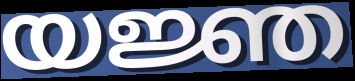
യജ്ഞ